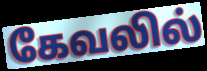
கேவலில்